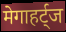
मेगाहर्ट्ज